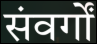
संवर्गों